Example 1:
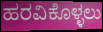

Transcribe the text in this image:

ಹರವಿಕೊಳ್ಳಲು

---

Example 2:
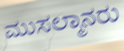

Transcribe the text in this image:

ಮುಸಲ್ಮಾನರು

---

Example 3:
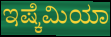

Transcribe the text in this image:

ಇಷ್ಕೆಮಿಯಾ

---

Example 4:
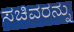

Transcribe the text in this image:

ಸಚಿವರನ್ನು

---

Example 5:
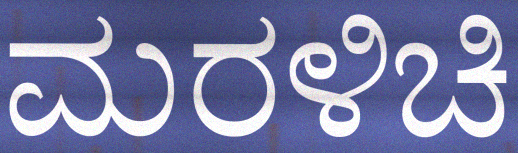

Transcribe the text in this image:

ಮರಳಿಚಿ